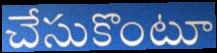
చేసుకొంటూ